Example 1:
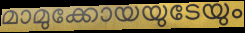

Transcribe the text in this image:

മാമുക്കോയയുടേയും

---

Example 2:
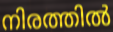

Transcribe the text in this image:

നിരത്തിൽ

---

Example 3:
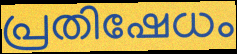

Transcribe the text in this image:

പ്രതിഷേധം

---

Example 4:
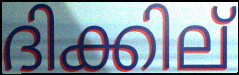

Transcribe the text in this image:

ദിക്കില്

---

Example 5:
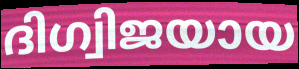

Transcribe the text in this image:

ദിഗ്വിജയായ